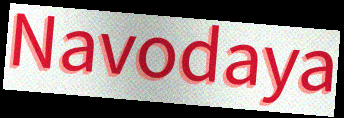
Navodaya